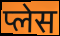
प्लेस